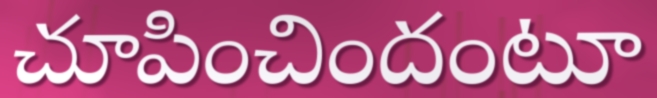
చూపించిందంటూ